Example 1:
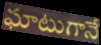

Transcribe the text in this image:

ఘాటుగానే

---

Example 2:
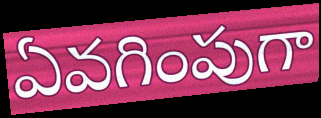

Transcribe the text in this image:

ఏవగింపుగా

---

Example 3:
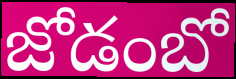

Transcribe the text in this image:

జోడంబో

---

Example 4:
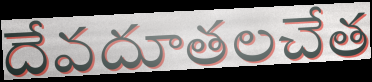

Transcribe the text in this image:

దేవదూతలచేత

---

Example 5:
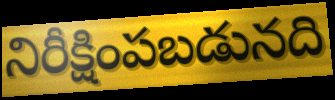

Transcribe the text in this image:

నిరీక్షింపబడునది